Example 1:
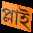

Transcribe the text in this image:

প্লাই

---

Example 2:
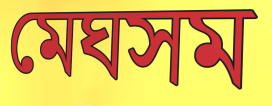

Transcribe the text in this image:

মেঘসম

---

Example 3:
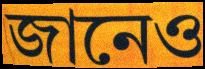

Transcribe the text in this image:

জানেও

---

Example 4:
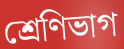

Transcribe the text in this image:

শ্রেণিভাগ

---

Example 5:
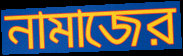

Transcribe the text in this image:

নামাজের